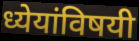
ध्येयांविषयी